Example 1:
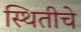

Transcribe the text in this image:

स्थितीचे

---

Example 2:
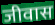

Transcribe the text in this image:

जीवास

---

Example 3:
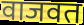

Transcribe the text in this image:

वाजवत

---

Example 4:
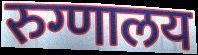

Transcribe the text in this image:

रुग्णालय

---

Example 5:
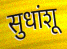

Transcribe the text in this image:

सुधांशू